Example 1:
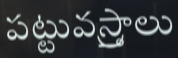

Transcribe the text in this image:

పట్టువస్ర్తాలు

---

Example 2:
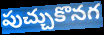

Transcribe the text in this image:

పుచ్చుకొనగ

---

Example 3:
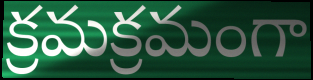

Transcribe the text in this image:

క్రమక్రమంగా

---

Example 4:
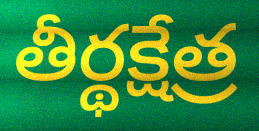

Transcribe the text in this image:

తీర్థక్షేత్ర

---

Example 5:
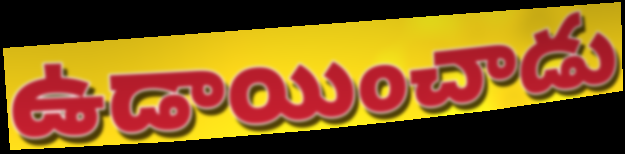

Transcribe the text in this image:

ఉడాయించాడు